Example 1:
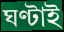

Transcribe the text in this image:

ঘণ্টাই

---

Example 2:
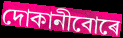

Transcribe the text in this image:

দোকানীবোৰে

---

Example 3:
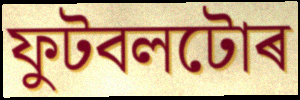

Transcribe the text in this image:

ফুটবলটোৰ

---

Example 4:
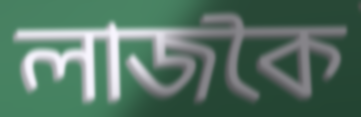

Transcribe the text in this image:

লাজকৈ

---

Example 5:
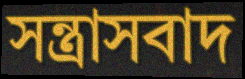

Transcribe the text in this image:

সন্ত্ৰাসবাদ